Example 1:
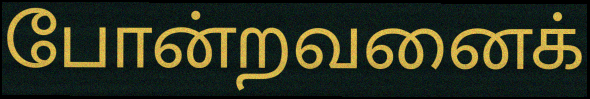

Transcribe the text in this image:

போன்றவனைக்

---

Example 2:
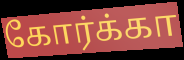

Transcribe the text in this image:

கோர்க்கா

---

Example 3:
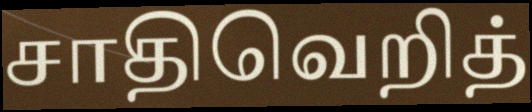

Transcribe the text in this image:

சாதிவெறித்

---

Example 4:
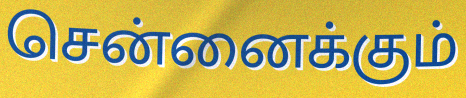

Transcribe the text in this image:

சென்னைக்கும்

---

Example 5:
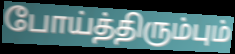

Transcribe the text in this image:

போய்த்திரும்பும்